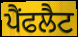
ਪੈਂਫਲੈਟ